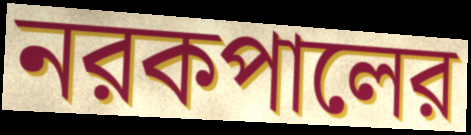
নরকপালের